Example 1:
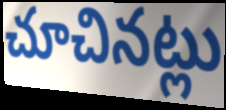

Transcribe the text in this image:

చూచినట్లు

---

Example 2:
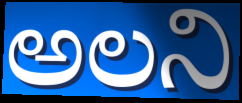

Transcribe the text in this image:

అలని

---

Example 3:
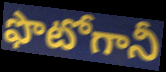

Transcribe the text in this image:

ఫొటోగానీ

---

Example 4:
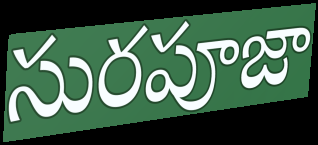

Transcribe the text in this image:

సురపూజా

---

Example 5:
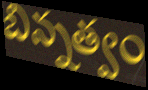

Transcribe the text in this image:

బిన్నత్వం